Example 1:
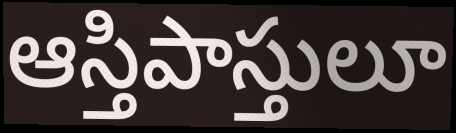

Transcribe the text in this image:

ఆస్తిపాస్తులూ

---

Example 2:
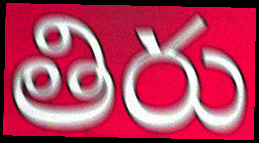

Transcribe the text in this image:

తిరు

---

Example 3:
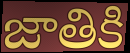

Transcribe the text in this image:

జాతికి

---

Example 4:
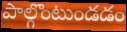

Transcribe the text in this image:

పాల్గొంటుండడం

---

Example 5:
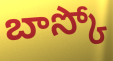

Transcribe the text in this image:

బాస్కో